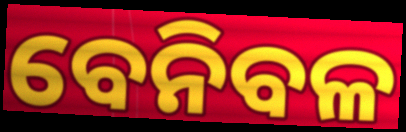
ବେନିବଳ